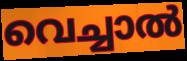
വെച്ചാൽ